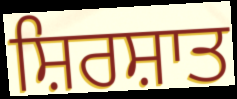
ਸ਼ਿਰਸ਼ਾਤ